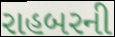
રાહબરની